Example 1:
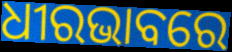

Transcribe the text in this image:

ଧୀରଭାବରେ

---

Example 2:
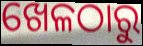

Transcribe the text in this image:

ଖେଳଠାରୁ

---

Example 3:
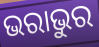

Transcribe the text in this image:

ଭରାଭୁର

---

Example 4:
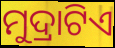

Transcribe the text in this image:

ମୁଦ୍ରାଟିଏ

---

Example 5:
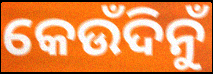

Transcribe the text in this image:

କେଉଁଦିନୁଁ